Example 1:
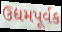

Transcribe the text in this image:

ઉદ્યમપૂર્વક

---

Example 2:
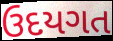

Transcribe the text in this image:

ઉદયગત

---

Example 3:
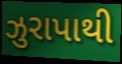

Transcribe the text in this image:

ઝુરાપાથી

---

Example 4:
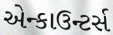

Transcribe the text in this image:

એન્કાઉન્ટર્સ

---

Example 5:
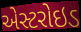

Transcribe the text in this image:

એસ્ટરોઇડ